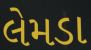
લેમડા